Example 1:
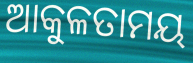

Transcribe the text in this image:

ଆକୁଳତାମୟ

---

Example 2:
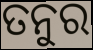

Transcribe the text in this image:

ତନୁର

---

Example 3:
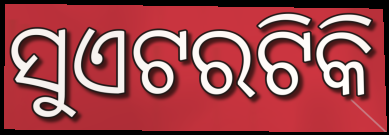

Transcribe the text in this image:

ସୁଏଟରଟିକି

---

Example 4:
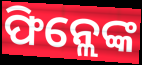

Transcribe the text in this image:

ଫିନ୍ଲେଙ୍କ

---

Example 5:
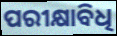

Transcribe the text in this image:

ପରୀକ୍ଷାବିଧି